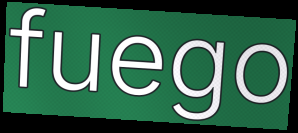
fuego